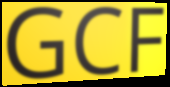
GCF